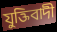
যুক্তিবাদী